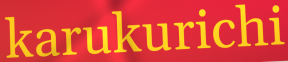
karukurichi